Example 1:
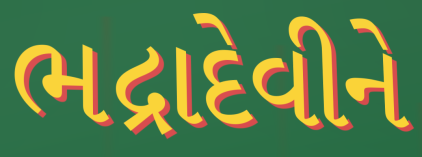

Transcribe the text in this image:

ભદ્રાદેવીને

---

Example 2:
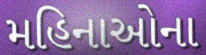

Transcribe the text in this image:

મહિનાઓના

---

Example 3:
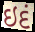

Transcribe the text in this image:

ઇદં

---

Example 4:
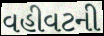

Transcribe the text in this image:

વહીવટની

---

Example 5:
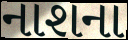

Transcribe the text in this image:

નાશના